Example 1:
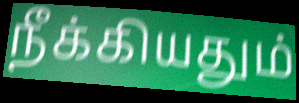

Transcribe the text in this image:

நீக்கியதும்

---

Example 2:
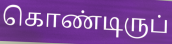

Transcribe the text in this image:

கொண்டிருப்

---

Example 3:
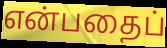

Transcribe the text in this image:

என்பதைப்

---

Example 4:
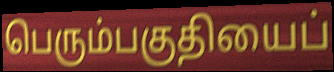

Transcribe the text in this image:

பெரும்பகுதியைப்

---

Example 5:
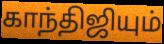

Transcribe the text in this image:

காந்திஜியும்